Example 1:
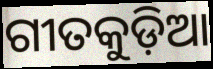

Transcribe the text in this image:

ଗୀତକୁଡ଼ିଆ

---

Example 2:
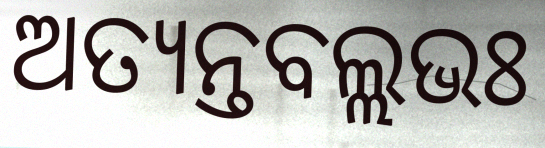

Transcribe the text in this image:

ଅତ୍ୟନ୍ତବଲ୍ଲଭଃ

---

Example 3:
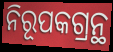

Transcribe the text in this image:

ନିରୂପକଗ୍ରନ୍ଥ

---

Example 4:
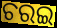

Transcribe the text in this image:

ଚରଇ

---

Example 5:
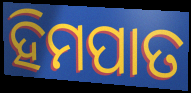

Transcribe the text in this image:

ହିମପାତ